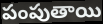
పంపుతాయి